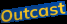
Outcast